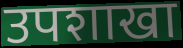
उपशाखा